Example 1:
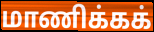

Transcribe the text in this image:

மாணிக்கக்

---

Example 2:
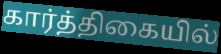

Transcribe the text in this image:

கார்த்திகையில்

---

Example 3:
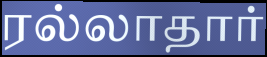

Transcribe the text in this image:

ரல்லாதார்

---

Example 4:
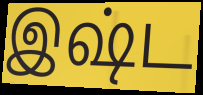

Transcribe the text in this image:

இஷ்ட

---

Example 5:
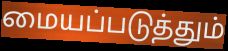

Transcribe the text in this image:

மையப்படுத்தும்